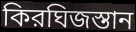
কিরঘিজস্তান